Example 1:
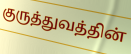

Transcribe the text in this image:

குருத்துவத்தின்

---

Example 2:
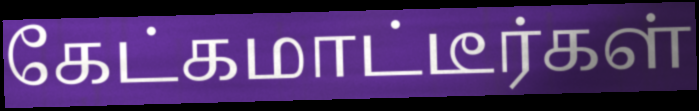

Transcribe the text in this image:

கேட்கமாட்டீர்கள்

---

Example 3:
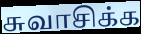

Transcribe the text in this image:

சுவாசிக்க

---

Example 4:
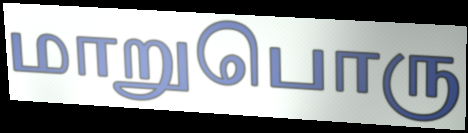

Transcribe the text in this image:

மாறுபொரு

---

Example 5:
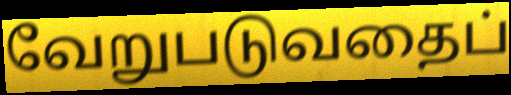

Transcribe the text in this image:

வேறுபடுவதைப்